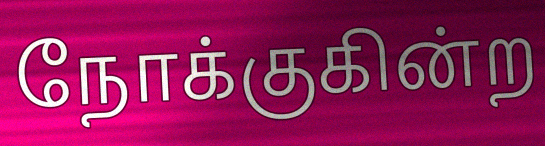
நோக்குகின்ற